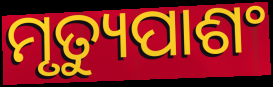
ମୃତ୍ୟୁପାଶଂ